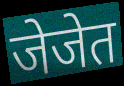
जेजेत